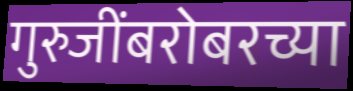
गुरुजींबरोबरच्या